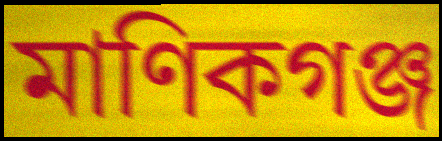
মাণিকগঞ্জ